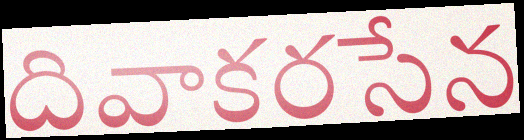
దివాకరసేన